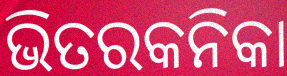
ଭିତରକନିକା